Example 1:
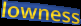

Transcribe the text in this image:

lowness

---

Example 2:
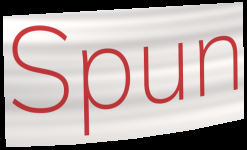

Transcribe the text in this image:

Spun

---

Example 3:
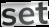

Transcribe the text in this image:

set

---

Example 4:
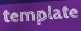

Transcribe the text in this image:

template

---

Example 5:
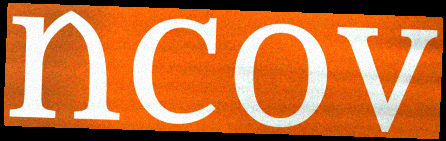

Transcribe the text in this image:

ncov